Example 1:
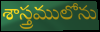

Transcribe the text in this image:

శాస్త్రములోను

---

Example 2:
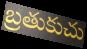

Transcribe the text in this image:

బ్రతుకుచు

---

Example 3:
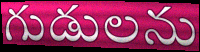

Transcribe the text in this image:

గుడులను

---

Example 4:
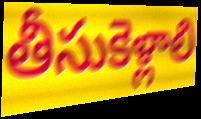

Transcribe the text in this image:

తీసుకెళ్లాలి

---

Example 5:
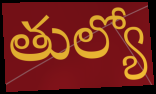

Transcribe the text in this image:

తుల్యో